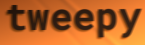
tweepy